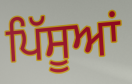
ਪਿੱਸੂਆਂ